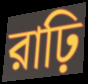
রাঢ়ি